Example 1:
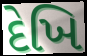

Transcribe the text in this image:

દેખિ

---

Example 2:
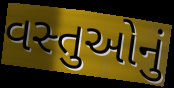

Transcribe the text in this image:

વસ્તુઓનું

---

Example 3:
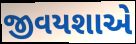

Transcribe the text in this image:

જીવયશાએ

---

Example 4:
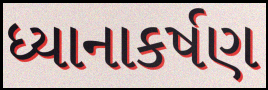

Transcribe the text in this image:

ધ્યાનાકર્ષણ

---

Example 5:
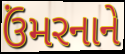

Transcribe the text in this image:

ઉંમરનાને